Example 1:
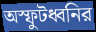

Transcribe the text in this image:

অস্ফুটধ্বনির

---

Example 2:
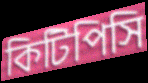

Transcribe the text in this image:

কিটিপিসি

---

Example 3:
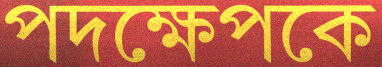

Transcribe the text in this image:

পদক্ষেপকে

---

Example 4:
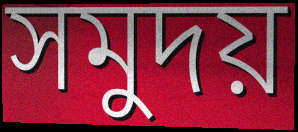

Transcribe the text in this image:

সমুদয়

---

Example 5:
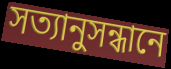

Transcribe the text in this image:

সত্যানুসন্ধানে